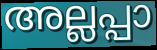
അല്ലപ്പാ